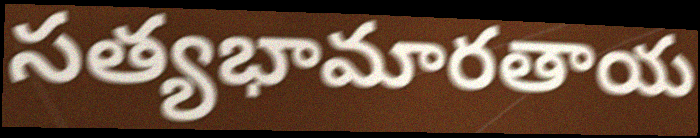
సత్యభామారతాయ